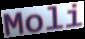
Moli